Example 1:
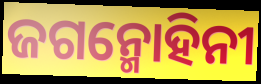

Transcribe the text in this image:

ଜଗନ୍ମୋହିନୀ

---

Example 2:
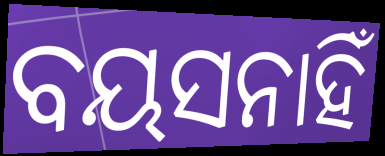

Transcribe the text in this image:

ବୟସନାହିଁ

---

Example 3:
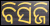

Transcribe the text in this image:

ବିସିଜି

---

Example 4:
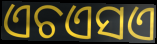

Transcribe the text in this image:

ଏଚଏସଏ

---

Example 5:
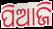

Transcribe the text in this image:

ପିଆଜି